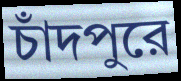
চাঁদপুরে